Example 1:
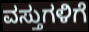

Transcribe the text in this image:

ವಸ್ತುಗಳಿಗೆ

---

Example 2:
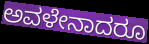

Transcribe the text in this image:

ಅವಳೇನಾದರೂ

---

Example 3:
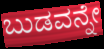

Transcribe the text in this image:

ಬುಡವನ್ನೇ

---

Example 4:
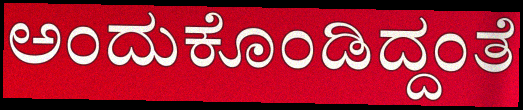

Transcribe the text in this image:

ಅಂದುಕೊಂಡಿದ್ದಂತೆ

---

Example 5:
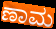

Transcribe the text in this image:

ಣಾಮ